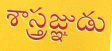
శాస్త్రజ్ఞుడు